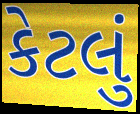
કેટલું